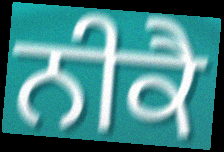
ਨੀਕੈ